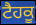
ਟੈਹਕੂ